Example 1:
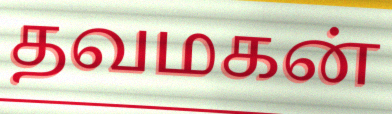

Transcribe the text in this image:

தவமகன்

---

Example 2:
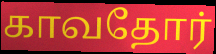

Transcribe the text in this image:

காவதோர்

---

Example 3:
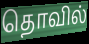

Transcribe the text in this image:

தொவில்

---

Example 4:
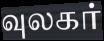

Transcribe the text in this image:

வுலகர்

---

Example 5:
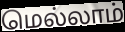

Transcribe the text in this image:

மெல்லாம்